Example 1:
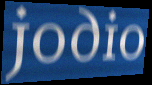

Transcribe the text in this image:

jodio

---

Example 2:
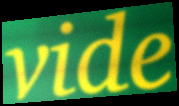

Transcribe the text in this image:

vide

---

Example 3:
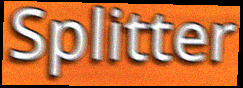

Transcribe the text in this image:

Splitter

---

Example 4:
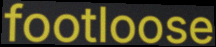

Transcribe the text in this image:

footloose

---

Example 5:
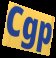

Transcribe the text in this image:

Cgp